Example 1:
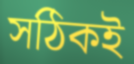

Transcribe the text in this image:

সঠিকই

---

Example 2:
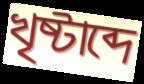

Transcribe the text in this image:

খৃষ্টাব্দে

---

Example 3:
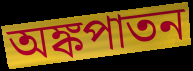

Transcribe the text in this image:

অঙ্কপাতন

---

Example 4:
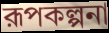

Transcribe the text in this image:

রূপকল্পনা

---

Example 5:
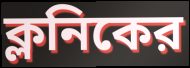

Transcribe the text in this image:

ক্লনিকের